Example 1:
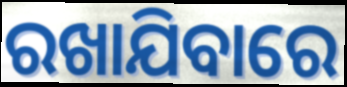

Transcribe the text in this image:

ରଖାଯିବାରେ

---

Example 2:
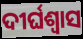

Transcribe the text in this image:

ଦୀର୍ଘଶ୍ଵାସ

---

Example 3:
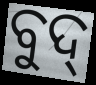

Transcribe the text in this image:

ବୁଦ୍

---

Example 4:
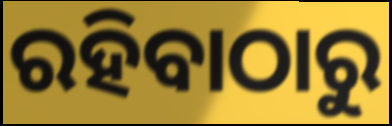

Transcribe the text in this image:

ରହିବାଠାରୁ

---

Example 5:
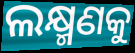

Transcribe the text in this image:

ଲକ୍ଷ୍ମଣକୁ